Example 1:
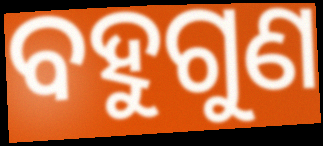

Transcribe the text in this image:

ବହୁଗୁଣ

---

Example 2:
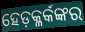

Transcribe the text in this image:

ହେଡ଼କ୍ଳର୍କଙ୍କର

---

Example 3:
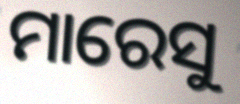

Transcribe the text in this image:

ମାରେସୁ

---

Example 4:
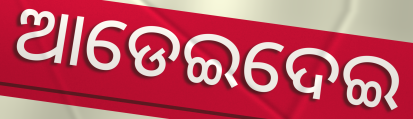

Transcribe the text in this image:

ଆଡେଇଦେଇ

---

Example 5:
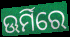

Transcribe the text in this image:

ଊର୍ମିରେ